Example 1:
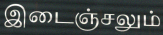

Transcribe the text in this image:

இடைஞ்சலும்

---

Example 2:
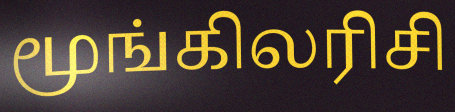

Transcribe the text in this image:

மூங்கிலரிசி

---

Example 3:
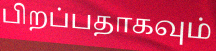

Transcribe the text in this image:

பிறப்பதாகவும்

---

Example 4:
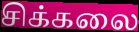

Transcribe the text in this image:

சிக்கலை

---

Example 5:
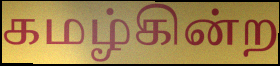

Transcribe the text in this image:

கமழ்கின்ற